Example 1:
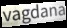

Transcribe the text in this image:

vagdana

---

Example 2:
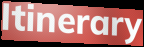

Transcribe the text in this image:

Itinerary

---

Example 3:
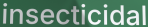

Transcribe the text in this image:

insecticidal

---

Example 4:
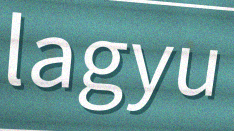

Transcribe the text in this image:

lagyu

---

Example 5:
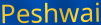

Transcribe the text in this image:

Peshwai